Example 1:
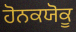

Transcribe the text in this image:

ਹੋਨਕਯੋਕੂ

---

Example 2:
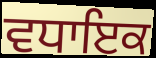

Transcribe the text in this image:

ਵਧਾਇਕ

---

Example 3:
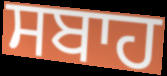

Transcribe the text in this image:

ਸਬਾਹ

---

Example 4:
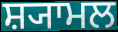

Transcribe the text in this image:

ਸ਼੍ਯਾਮਲ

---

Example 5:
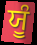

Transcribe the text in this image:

ਯੂੰ